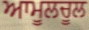
ਆਮੂਲਚੂਲ